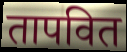
तापवित